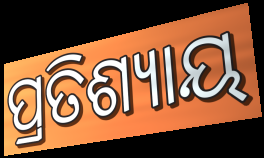
ପ୍ରତିଶ୍ୟାୟ